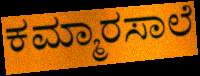
ಕಮ್ಮಾರಸಾಲೆ